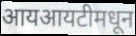
आयआयटीमधून